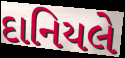
દાનિયલે